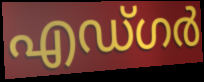
എഡ്ഗർ